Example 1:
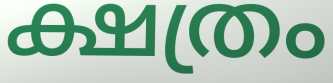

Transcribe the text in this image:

ക്ഷത്രം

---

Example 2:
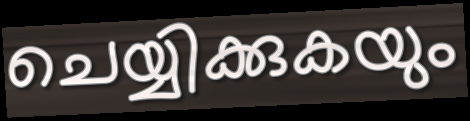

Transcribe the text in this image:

ചെയ്യിക്കുകയും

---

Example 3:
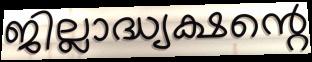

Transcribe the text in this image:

ജില്ലാദ്ധ്യക്ഷന്റെ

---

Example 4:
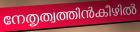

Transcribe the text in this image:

നേതൃത്വത്തിൻകീഴിൽ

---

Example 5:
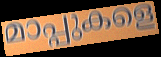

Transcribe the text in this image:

മാപ്പുകളെ